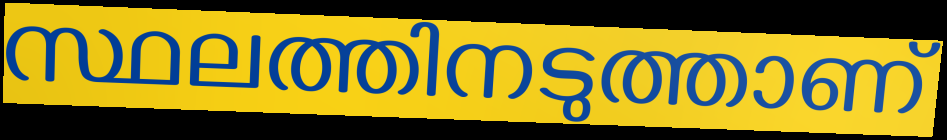
സ്ഥലത്തിനടുത്താണ്